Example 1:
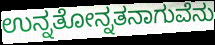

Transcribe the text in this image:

ಉನ್ನತೋನ್ನತನಾಗುವೆನು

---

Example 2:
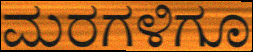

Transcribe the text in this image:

ಮರಗಳಿಗೂ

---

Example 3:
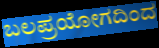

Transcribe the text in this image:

ಬಲಪ್ರಯೋಗದಿಂದ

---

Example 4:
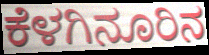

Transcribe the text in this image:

ಕೆಳಗಿನೂರಿನ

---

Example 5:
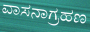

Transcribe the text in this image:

ವಾಸನಾಗ್ರಹಣ